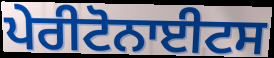
ਪੇਰੀਟੋਨਾਈਟਸ